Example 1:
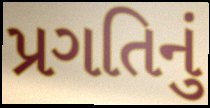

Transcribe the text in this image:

પ્રગતિનું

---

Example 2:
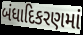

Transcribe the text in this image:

બંધાદિકરણમાં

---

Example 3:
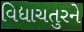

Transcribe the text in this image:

વિદ્યાચતુરને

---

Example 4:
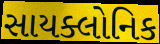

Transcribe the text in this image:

સાયક્લોનિક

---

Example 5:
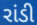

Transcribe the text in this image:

રાંડી